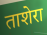
ताशेरा